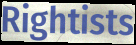
Rightists